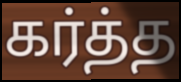
கர்த்த